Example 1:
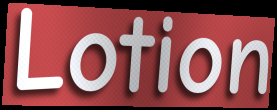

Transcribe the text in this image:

Lotion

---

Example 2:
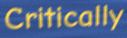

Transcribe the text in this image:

Critically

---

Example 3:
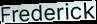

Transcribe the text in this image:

Frederick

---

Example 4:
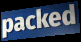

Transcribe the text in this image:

packed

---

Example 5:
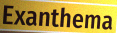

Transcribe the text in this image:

Exanthema